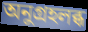
অনুগ্রহলব্ধ